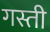
गस्ती